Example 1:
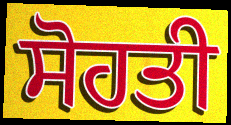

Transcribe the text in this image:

ਸੋਹਤੀ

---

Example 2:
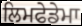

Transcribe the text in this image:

ਲਿਮਫੇਡੇਮਾ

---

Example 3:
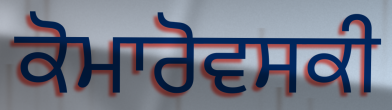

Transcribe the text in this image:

ਕੋਮਾਰੋਵਸਕੀ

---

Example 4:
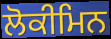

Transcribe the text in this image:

ਲੋਕੀਮਿਨ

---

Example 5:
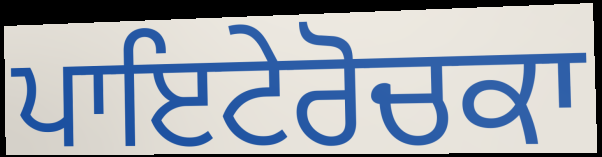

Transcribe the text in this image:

ਪਾਇਟੇਰੋਚਕਾ